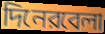
দিনেরবেলা